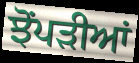
ਝੋਂਪੜੀਆਂ